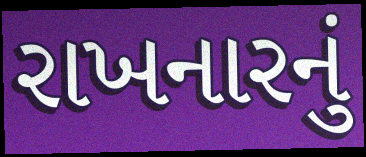
રાખનારનું